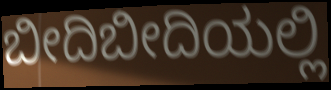
ಬೀದಿಬೀದಿಯಲ್ಲಿ